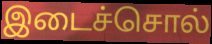
இடைச்சொல்